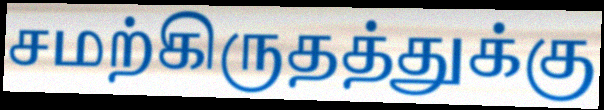
சமற்கிருதத்துக்கு